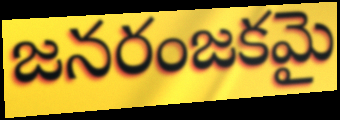
జనరంజకమై